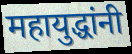
महायुद्धांनी